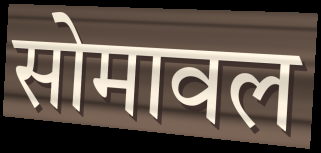
सोमावल